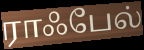
ராஃபேல்